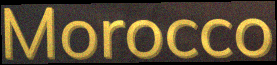
Morocco